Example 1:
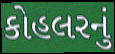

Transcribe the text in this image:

કોહલરનું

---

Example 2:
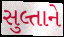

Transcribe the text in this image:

સુલ્તાને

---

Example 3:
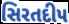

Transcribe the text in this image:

સિરતદીપ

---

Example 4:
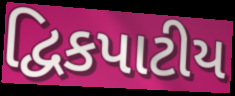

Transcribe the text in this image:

દ્વિકપાટીય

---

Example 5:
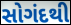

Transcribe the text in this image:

સોગંદથી